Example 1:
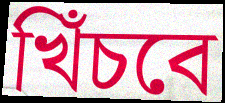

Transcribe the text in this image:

খিঁচবে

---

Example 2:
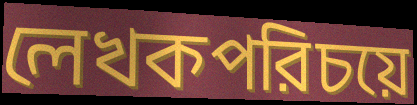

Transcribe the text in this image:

লেখকপরিচয়ে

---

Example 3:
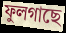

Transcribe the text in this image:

ফুলগাছে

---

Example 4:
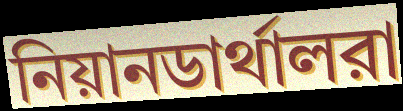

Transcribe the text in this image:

নিয়ানডার্থালরা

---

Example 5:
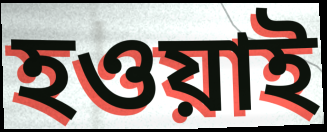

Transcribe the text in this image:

হওয়াই